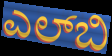
ಎಲ್‌ಬಿ